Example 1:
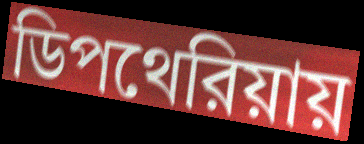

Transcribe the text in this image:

ডিপথেরিয়ায়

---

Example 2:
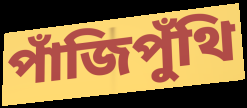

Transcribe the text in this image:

পাঁজিপুঁথি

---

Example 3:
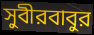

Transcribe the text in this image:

সুবীরবাবুর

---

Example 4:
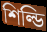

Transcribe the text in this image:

শিল্ডি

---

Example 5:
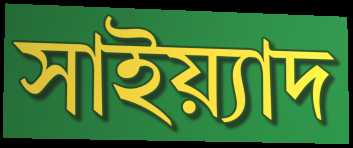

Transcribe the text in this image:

সাইয়্যাদ